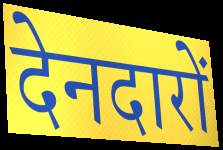
देनदारों